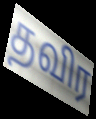
தவிர